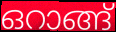
ഒറാങ്ങ്